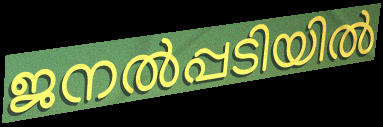
ജനൽപ്പടിയിൽ